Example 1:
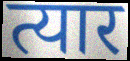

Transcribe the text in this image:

त्यार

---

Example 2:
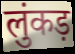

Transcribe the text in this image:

लुंकड़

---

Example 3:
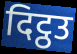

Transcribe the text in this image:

दिट्ठउ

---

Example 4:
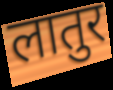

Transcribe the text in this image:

लातुर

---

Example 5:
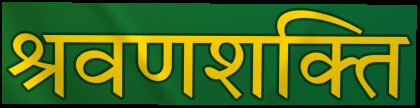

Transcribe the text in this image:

श्रवणशक्ति